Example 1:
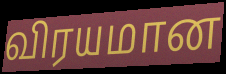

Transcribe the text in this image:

விரயமான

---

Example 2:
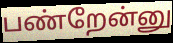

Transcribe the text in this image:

பண்றேன்னு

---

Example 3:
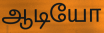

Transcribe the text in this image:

ஆடியோ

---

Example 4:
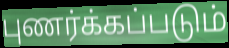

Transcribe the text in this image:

புணர்க்கப்படும்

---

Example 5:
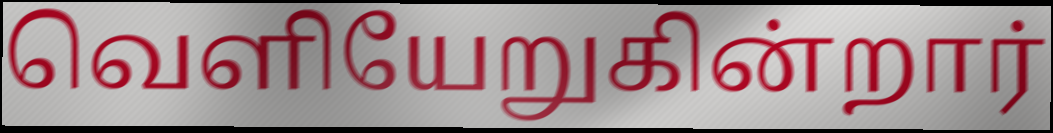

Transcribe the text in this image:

வெளியேறுகின்றார்